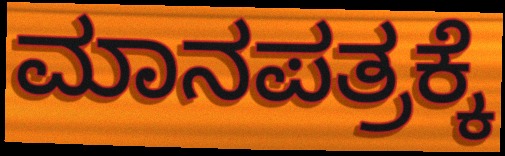
ಮಾನಪತ್ರಕ್ಕೆ